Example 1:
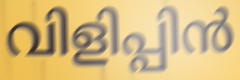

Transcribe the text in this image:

വിളിപ്പിൻ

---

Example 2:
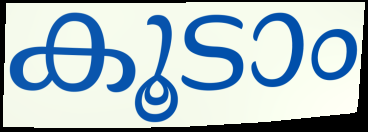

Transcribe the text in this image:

കൂടാം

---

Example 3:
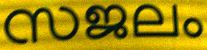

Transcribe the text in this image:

സജലം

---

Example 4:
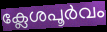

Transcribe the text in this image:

ക്ലേശപൂർവം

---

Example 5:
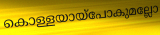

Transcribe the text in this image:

കൊള്ളയായ്പോകുമല്ലോ